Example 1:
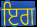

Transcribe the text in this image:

ਇਗ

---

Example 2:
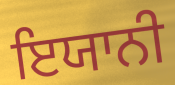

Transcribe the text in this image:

ਇਯਾਨੀ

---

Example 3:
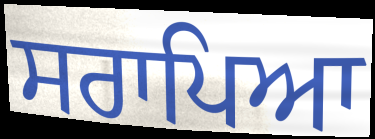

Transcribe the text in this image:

ਸਰਾਪਿਆ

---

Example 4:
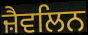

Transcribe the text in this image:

ਜ਼ੈਵਲਿਨ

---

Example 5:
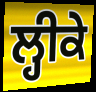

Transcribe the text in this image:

ਲ੍ਹੀਕੇ